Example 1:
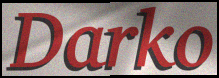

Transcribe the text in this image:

Darko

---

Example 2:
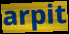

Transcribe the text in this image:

arpit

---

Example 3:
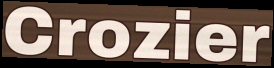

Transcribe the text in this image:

Crozier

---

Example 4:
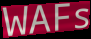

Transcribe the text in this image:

WAFs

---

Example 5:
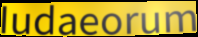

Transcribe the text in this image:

Iudaeorum